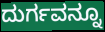
ದುರ್ಗವನ್ನೂ